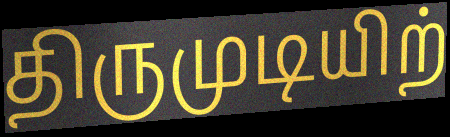
திருமுடியிற்